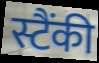
स्टैंकी